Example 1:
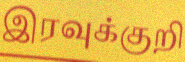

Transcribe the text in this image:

இரவுக்குறி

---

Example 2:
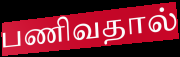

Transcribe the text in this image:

பணிவதால்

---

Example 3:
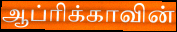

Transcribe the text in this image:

ஆப்ரிக்காவின்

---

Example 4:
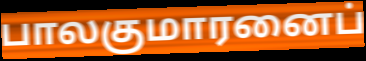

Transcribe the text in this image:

பாலகுமாரனைப்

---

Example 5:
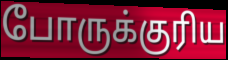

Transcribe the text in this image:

போருக்குரிய